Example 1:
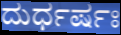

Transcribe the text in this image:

ದುರ್ಧರ್ಷಃ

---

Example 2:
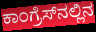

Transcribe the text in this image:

ಕಾಂಗ್ರೆಸ್‌ನಲ್ಲಿನ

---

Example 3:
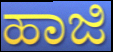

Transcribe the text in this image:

ಹಾಜಿ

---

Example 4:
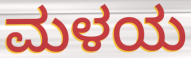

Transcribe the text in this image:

ಮಳಯ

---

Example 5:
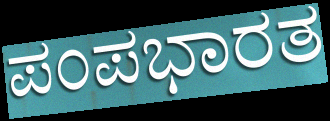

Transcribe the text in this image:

ಪಂಪಭಾರತ